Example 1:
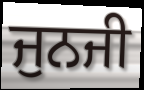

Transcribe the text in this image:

ਜੁਨਜੀ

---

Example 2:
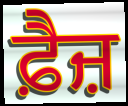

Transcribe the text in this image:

ਫ਼ੈਜ਼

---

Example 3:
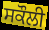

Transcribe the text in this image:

ਸਕੌਲੀ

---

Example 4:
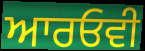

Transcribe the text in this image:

ਆਰਓਵੀ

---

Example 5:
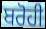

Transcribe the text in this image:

ਬਰੋਹੀ